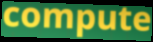
compute